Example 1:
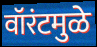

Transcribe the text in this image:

वॉरंटमुळे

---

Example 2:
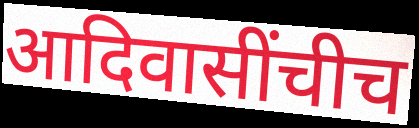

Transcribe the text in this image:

आदिवासींचीच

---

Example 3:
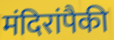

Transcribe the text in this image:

मंदिरांपैकी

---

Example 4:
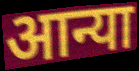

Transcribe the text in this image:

आन्या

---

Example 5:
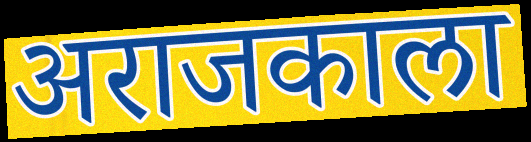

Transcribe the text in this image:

अराजकाला